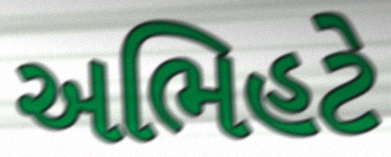
અભિહટે